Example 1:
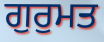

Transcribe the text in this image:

ਗੁਰੁਮਤ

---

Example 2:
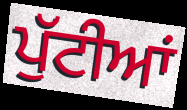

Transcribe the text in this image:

ਪੁੱਟੀਆਂ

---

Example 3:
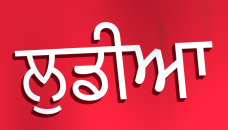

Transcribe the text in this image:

ਲੁਡੀਆ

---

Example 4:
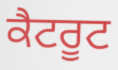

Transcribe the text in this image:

ਕੈਟਰੂਟ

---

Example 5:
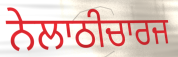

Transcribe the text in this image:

ਨੇਲਾਠੀਚਾਰਜ